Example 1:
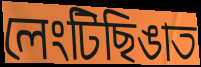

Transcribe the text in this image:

লেংটিছিঙাত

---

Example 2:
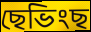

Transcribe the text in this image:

ছেভিংছ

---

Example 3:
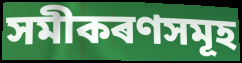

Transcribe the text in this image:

সমীকৰণসমূহ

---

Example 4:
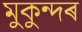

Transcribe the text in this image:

মুকুন্দৰ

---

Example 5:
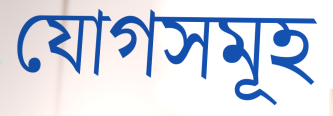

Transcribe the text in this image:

যোগসমূহ